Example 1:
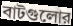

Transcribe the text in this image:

বাটগুলোর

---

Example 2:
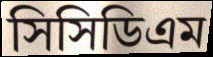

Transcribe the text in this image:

সিসিডিএম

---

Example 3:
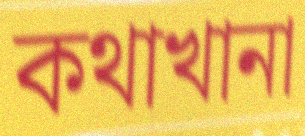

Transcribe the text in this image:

কথাখানা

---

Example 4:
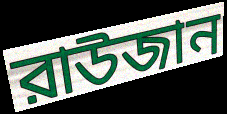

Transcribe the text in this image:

রাউজান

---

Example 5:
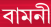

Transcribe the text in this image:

বামনী